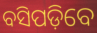
ବସିପଡ଼ିବେ